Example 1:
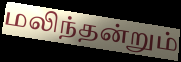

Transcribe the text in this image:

மலிந்தன்றும்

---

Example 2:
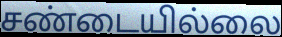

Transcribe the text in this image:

சண்டையில்லை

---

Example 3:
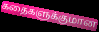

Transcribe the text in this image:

கதைகளுக்குமான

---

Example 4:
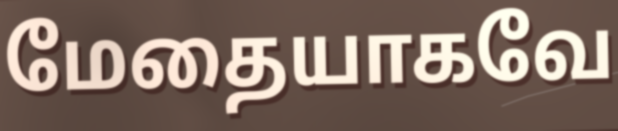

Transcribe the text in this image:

மேதையாகவே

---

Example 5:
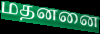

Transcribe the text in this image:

மதனனை